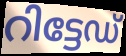
റിട്ടേഡ്